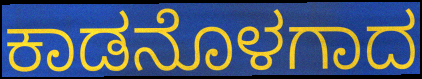
ಕಾಡನೊಳಗಾದ